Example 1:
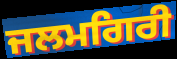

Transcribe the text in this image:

ਜਲਮਗਿਰੀ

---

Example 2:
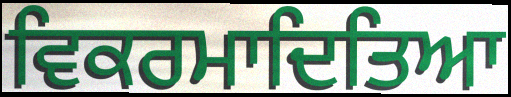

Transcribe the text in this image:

ਵਿਕਰਮਾਦਿਤਿਆ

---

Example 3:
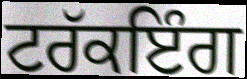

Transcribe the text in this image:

ਟਰੱਕਇੰਗ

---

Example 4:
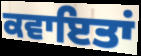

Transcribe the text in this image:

ਕਵਾਇਤਾਂ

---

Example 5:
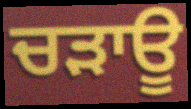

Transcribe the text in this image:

ਚੜਾਊ